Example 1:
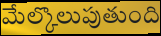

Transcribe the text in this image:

మేల్కొలుపుతుంది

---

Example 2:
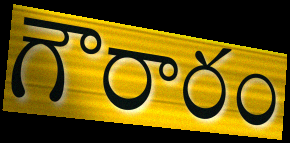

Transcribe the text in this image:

గౌరారం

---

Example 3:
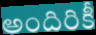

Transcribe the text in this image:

అందిరికీ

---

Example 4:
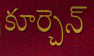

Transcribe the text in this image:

కూర్చెన్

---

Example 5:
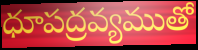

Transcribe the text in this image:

ధూపద్రవ్యముతో